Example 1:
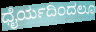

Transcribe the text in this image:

ಧೈರ್ಯದಿಂದಲೂ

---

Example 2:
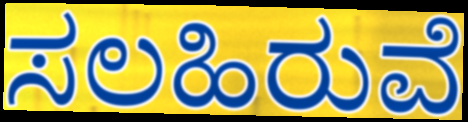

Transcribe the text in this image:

ಸಲಹಿರುವೆ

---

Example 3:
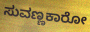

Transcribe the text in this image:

ಸುವಣ್ಣಕಾರೋ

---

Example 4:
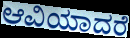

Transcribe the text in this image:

ಆವಿಯಾದರೆ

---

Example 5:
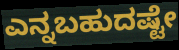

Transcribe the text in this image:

ಎನ್ನಬಹುದಷ್ಟೇ